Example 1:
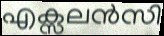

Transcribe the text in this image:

എക്സലൻസി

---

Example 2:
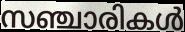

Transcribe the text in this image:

സഞ്ചാരികൾ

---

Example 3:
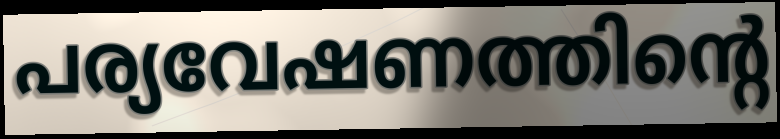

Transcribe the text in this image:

പര്യവേഷണത്തിന്റെ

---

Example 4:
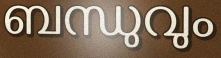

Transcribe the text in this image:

ബന്ധുവും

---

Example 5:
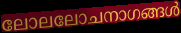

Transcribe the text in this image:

ലോലലോചനാഗങ്ങൾ